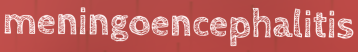
meningoencephalitis